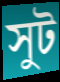
সুট